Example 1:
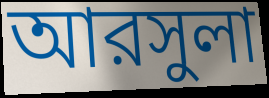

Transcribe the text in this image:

আরসুলা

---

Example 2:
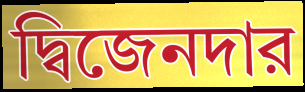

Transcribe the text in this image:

দ্বিজেনদার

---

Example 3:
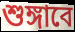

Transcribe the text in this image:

শুঙ্গাবে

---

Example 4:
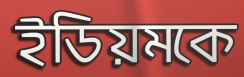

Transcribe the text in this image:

ইডিয়মকে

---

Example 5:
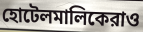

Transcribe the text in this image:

হোটেলমালিকেরাও